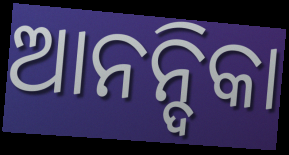
ଆନନ୍ଦିକା